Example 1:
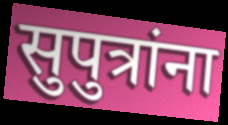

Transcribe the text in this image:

सुपुत्रांना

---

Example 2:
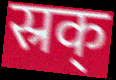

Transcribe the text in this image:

स्रक्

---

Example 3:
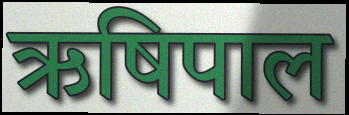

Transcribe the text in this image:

ऋषिपाल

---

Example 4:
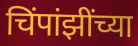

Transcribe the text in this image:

चिंपांझींच्या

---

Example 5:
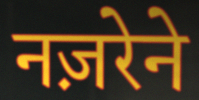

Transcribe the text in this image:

नज़रेने